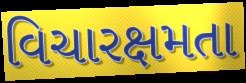
વિચારક્ષમતા